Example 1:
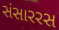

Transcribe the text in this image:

સંસારરસ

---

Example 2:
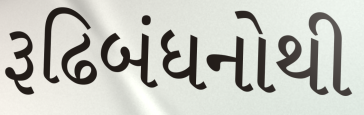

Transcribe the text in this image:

રૂઢિબંધનોથી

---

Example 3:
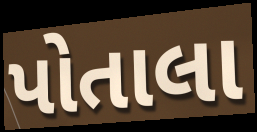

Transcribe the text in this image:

પોતાલા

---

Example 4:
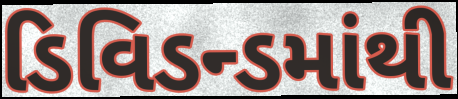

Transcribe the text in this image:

ડિવિડન્ડમાંથી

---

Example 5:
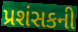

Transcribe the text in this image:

પ્રશંસકની